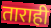
ताराही